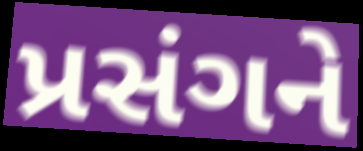
પ્રસંગને